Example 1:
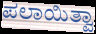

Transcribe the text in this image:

ಪಲಾಯಿತ್ವಾ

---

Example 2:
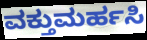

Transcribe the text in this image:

ವಕ್ತುಮರ್ಹಸಿ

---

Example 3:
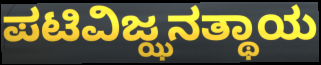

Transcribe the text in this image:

ಪಟಿವಿಜ್ಝನತ್ಥಾಯ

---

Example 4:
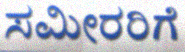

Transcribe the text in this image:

ಸಮೀರರಿಗೆ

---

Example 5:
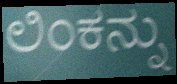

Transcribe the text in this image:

ಲಿಂಕನ್ನು